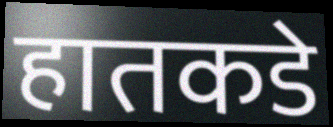
हातकडे